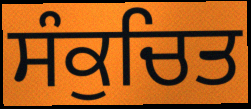
ਸੰਕੁਚਿਤ